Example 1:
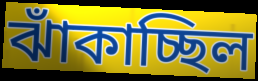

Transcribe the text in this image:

ঝাঁকাচ্ছিল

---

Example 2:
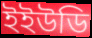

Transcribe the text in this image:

ইইউডি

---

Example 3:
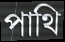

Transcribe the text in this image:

পাথি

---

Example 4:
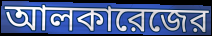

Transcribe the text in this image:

আলকারেজের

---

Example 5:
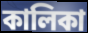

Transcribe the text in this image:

কালিকা